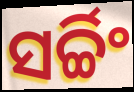
ସର୍ଚ୍ଚିଂ